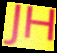
JH